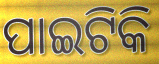
ପାଇଟିକି